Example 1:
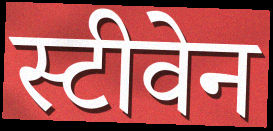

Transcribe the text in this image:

स्टीवेन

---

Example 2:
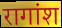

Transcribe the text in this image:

रागांश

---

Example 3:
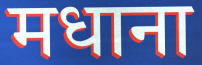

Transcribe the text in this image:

मधाना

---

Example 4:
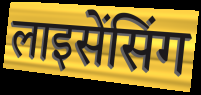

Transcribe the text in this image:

लाइसेंसिंग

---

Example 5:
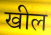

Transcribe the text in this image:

खील